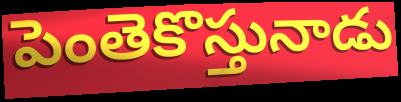
పెంతెకొస్తునాడు